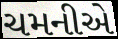
ચમનીએ